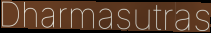
Dharmasutras